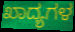
ಖಾದ್ಯಗಳ